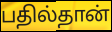
பதில்தான்